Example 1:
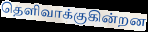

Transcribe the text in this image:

தெளிவாக்குகின்றன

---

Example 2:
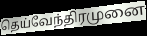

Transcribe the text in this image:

தெய்வேந்திரமுனை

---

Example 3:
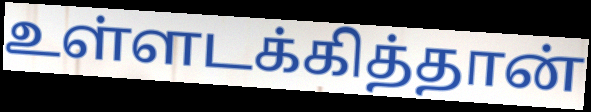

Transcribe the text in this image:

உள்ளடக்கித்தான்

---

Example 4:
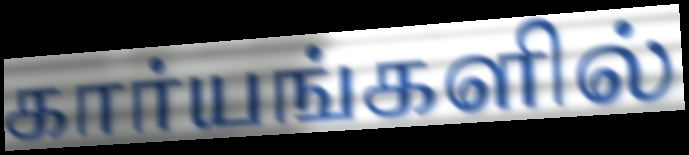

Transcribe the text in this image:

கார்யங்களில்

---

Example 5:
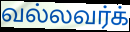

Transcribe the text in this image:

வல்லவர்க்